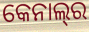
କେନାଲ୍‍ର